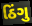
ઠિંગુ